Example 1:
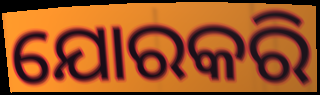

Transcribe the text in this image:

ଯୋରକରି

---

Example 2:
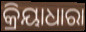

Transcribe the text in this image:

କ୍ରିୟାଧାରା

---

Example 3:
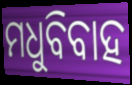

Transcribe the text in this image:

ମଧୁବିବାହ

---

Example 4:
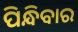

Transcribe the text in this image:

ପିନ୍ଧିବାର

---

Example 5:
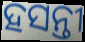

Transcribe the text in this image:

ହସନ୍ତୀ